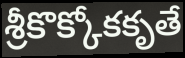
శ్రీకొక్కోకకృతే